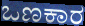
ಒಣಕಾರ